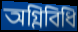
অগ্নিবিধি